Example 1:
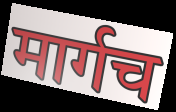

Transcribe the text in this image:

मार्गच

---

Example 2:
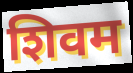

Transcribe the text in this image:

शिवम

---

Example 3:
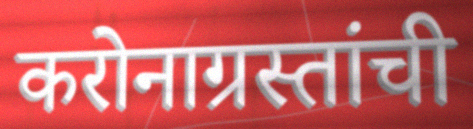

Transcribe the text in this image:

करोनाग्रस्तांची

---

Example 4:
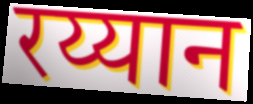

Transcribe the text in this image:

रय्यान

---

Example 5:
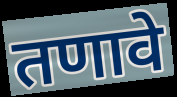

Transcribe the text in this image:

तणावे